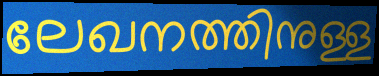
ലേഖനത്തിനുള്ള